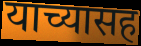
याच्यासह